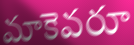
మాకెవరూ